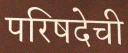
परिषदेची